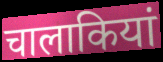
चालाकियां